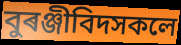
বুৰঞ্জীবিদসকলে